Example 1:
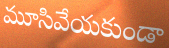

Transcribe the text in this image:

మూసివేయకుండా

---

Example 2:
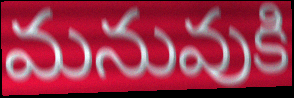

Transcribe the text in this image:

మనువుకి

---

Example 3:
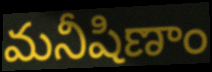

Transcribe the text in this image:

మనీషిణాం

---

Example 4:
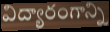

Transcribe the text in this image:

విద్యారంగాన్ని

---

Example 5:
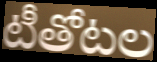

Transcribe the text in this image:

టీతోటల